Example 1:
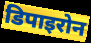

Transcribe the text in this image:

डिपाइरोन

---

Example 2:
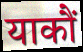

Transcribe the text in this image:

याकौं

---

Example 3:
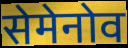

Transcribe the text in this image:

सेमेनोव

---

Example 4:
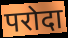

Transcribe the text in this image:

परोदा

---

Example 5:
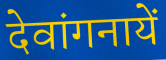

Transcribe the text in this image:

देवांगनायें